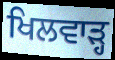
ਖਿਲਵਾੜ੍ਹ